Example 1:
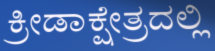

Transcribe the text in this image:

ಕ್ರೀಡಾಕ್ಷೇತ್ರದಲ್ಲಿ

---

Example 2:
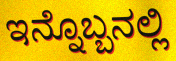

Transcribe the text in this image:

ಇನ್ನೊಬ್ಬನಲ್ಲಿ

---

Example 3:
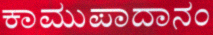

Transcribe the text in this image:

ಕಾಮುಪಾದಾನಂ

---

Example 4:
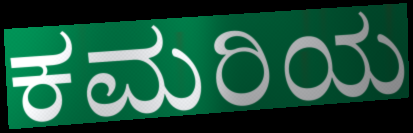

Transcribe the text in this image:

ಕಮರಿಯ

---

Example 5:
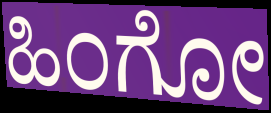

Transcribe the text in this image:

ಹಿಂಗೋ